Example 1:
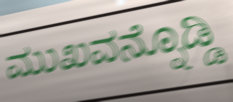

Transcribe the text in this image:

ಮುಖವನ್ನೊಡ್ಡಿ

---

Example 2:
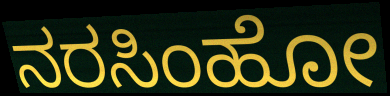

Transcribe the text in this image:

ನರಸಿಂಹೋ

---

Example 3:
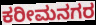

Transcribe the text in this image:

ಕರೀಮನಗರ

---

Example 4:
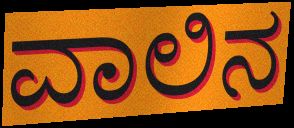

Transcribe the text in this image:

ವಾಲಿನ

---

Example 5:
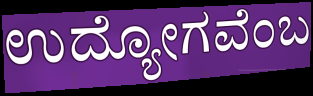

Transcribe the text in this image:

ಉದ್ಯೋಗವೆಂಬ